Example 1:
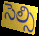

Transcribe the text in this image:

సెల్సి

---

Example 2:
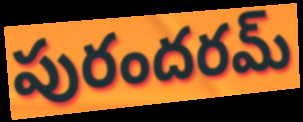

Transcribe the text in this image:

పురందరమ్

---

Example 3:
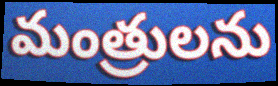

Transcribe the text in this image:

మంత్రులను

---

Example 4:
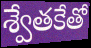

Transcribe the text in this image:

శ్వేతకేతో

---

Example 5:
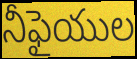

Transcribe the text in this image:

నీఫైయుల